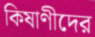
কিষাণীদের